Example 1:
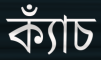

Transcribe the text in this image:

ক্যাঁচ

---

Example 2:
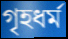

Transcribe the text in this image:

গৃহধর্ম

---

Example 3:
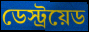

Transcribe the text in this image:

ডেস্ট্রয়েড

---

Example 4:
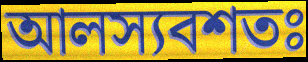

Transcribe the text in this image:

আলস্যবশতঃ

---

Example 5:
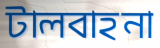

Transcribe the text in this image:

টালবাহনা